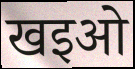
खइओ